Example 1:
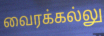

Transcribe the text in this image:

வைரக்கல்லு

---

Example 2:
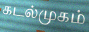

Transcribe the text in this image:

கடல்முகம்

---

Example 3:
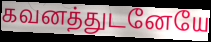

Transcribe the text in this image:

கவனத்துடனேயே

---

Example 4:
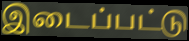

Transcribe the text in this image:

இடைப்பட்டு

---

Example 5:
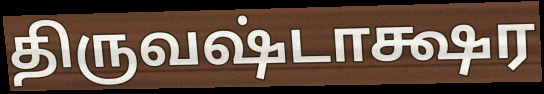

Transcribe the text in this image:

திருவஷ்டாக்ஷர